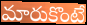
మారుకొంటే